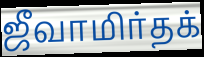
ஜீவாமிர்தக்